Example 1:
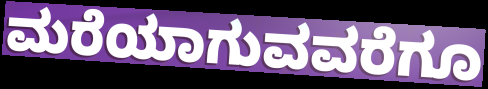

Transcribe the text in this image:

ಮರೆಯಾಗುವವರೆಗೂ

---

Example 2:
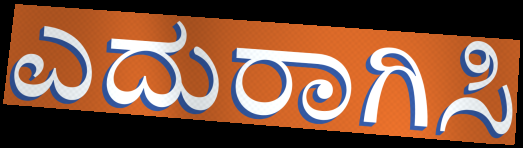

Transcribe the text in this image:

ಎದುರಾಗಿಸಿ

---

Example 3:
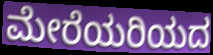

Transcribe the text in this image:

ಮೇರೆಯರಿಯದ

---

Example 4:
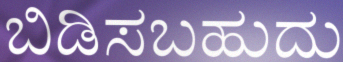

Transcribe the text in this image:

ಬಿಡಿಸಬಹುದು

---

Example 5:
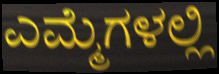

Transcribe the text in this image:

ಎಮ್ಮೆಗಳಲ್ಲಿ